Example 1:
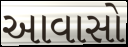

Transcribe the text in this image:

આવાસો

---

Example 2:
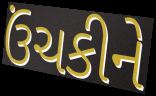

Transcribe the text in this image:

ઉંચકીને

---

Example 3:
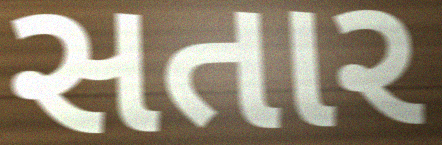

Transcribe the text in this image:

સતાર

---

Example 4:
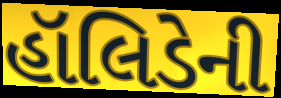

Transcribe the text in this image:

હૉલિડેની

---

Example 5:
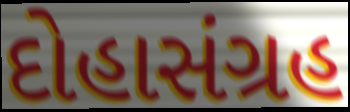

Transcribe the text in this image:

દોહાસંગ્રહ